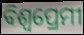
ବିଶ୍ବପ୍ରେମୀ